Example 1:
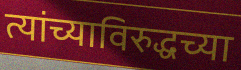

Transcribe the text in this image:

त्यांच्याविरुद्धच्या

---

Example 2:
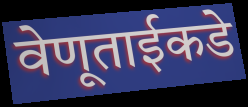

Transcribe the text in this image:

वेणूताईकडे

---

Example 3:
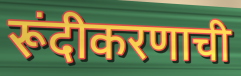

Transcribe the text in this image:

रूंदीकरणाची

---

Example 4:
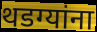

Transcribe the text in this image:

थडग्यांना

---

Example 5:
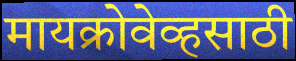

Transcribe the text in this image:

मायक्रोवेव्हसाठी